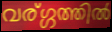
വര്ഗ്ഗത്തിൽ